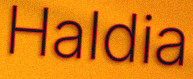
Haldia